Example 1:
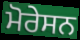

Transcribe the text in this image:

ਮੋਰੇਸਨ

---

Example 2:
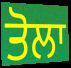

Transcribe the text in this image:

ਤੋਲਾ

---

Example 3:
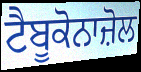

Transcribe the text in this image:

ਟੈਬੂਕੋਨਾਜ਼ੋਲ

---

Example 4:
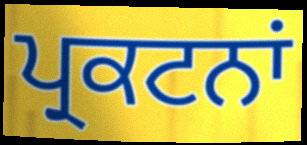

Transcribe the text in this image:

ਪ੍ਰਕਟਨਾਂ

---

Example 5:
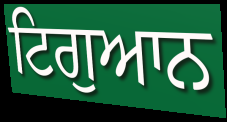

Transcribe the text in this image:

ਟਿਗੁਆਨ